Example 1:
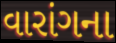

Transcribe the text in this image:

વારાંગના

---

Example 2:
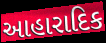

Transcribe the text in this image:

આહારાદિક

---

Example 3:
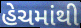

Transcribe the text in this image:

હેચમાંથી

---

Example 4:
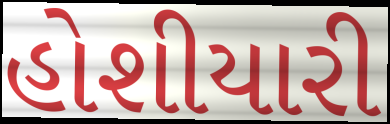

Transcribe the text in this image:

હોશીયારી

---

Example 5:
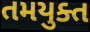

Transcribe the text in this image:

તમયુક્ત